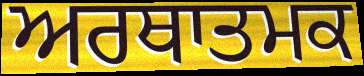
ਅਰਥਾਤਮਕ